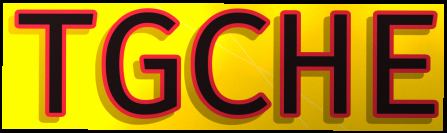
TGCHE